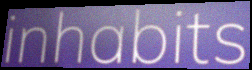
inhabits